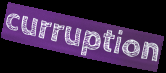
curruption